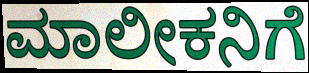
ಮಾಲೀಕನಿಗೆ